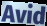
Avid